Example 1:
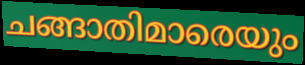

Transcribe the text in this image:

ചങ്ങാതിമാരെയും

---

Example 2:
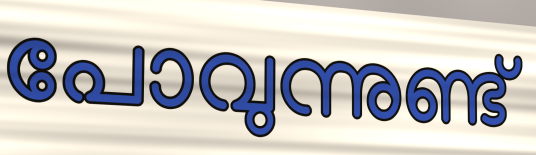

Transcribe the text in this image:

പോവുന്നുണ്ട്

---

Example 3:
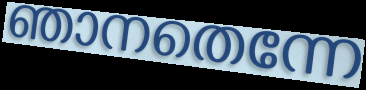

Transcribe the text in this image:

ഞാനതെന്നേ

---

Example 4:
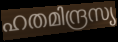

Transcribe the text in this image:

ഹതമിന്ദ്രസ്യ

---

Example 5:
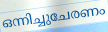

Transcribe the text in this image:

ഒന്നിച്ചുചേരണം